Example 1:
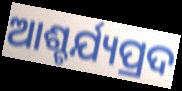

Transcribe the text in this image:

ଆଶ୍ଚର୍ଯ୍ୟପ୍ରଦ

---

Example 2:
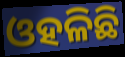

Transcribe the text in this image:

ଓହଳିଛି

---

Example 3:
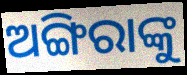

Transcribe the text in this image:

ଅଙ୍ଗିରାଙ୍କୁ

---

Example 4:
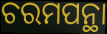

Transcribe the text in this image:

ଚରମପନ୍ଥା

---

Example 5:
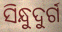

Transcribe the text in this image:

ସିନ୍ଧୁଦୁର୍ଗ